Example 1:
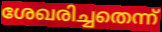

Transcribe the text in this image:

ശേഖരിച്ചതെന്ന്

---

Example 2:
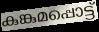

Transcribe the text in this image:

കുങ്കുമപ്പൊട്ട്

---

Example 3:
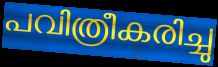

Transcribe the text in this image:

പവിത്രീകരിച്ചു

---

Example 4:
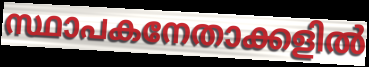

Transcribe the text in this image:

സ്ഥാപകനേതാക്കളിൽ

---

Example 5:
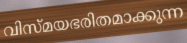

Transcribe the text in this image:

വിസ്മയഭരിതമാക്കുന്ന